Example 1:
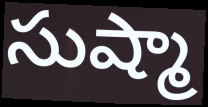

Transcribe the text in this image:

సుష్మా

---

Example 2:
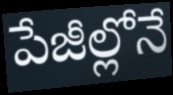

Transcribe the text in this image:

పేజీల్లోనే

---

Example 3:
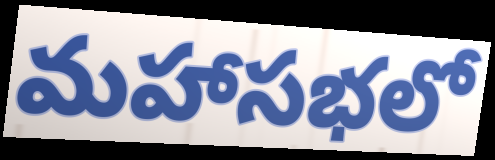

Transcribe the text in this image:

మహాసభలో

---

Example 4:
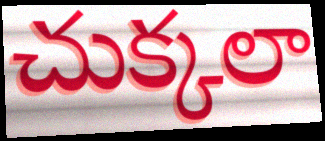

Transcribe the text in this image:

చుక్కలా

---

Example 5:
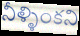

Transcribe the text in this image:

నీళ్ళింకని